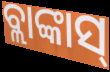
ବ୍ଲାଙ୍କାସ୍